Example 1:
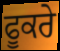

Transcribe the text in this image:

ਫੂਕਰੇ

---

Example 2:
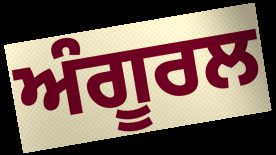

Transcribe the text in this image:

ਅੰਗੂਰਲ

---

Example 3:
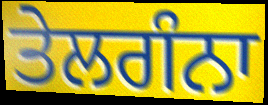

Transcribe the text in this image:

ਤੇਲਗੰਨਾ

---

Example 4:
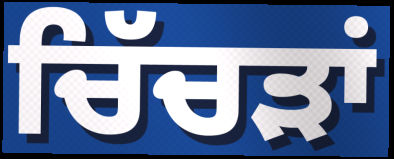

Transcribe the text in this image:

ਚਿੱਚੜਾਂ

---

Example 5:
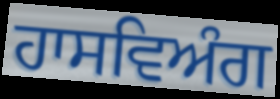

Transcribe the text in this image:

ਹਾਸਵਿਅੰਗ